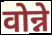
वोन्ने